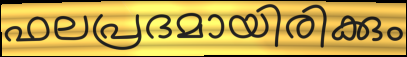
ഫലപ്രദമായിരിക്കും